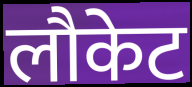
लौकेट